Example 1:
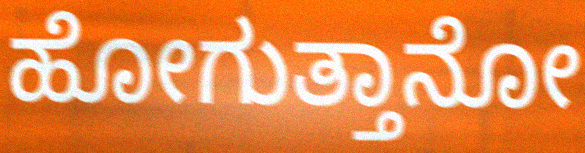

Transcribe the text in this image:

ಹೋಗುತ್ತಾನೋ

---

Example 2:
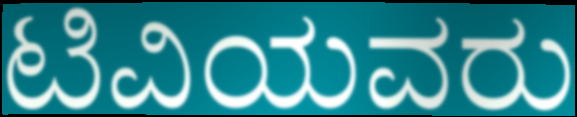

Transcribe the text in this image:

ಟಿವಿಯವರು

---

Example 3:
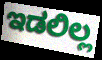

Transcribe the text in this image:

ಇಡಲಿಲ್ಲ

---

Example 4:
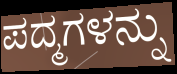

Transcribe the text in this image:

ಪದ್ಮಗಳನ್ನು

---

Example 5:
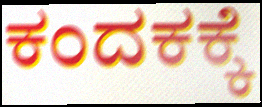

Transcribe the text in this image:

ಕಂದಕಕ್ಕೆ